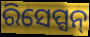
ରିସେପ୍ସନ୍